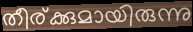
തീര്ക്കുമായിരുന്നു